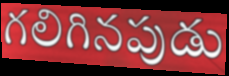
గలిగినపుడు